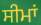
ਸੀਮਾਂ